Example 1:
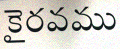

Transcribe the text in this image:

కైరవము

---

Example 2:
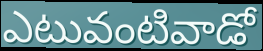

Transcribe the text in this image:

ఎటువంటివాడో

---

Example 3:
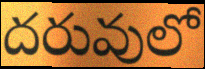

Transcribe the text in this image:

దరువులో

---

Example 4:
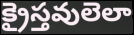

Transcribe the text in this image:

క్రైస్తవులెలా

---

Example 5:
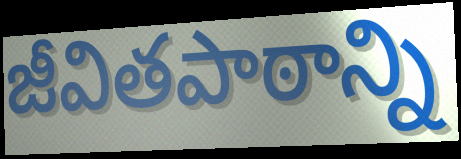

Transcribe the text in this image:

జీవితపాఠాన్ని